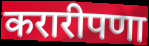
करारीपणा